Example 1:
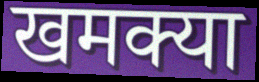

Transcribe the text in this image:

खमक्या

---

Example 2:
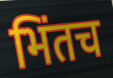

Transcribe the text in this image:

भिंतच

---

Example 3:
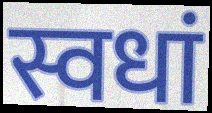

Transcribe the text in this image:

स्वधां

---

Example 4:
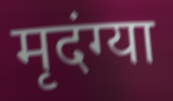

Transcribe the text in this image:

मृदंग्या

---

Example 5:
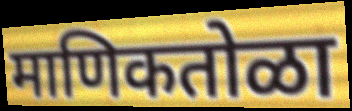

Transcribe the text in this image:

माणिकतोळा